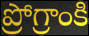
ప్రోగ్రాంకి